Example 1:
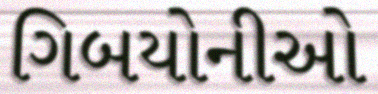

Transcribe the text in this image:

ગિબયોનીઓ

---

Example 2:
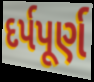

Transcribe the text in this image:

દર્પપૂર્ણ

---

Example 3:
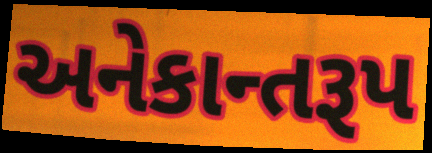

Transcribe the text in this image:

અનેકાન્તરૂપ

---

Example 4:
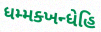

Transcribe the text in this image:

ધમ્મક્ખન્ધેહિ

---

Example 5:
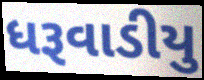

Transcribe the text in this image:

ધરૂવાડીયુ